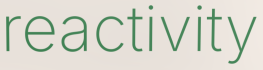
reactivity